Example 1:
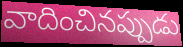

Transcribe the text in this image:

వాదించినప్పుడు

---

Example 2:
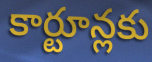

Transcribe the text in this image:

కార్టూన్లకు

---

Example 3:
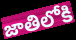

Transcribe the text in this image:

జాతిలోకి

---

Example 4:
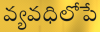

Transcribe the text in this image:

వ్యవధిలోపే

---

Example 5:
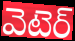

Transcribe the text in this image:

వెటెర్